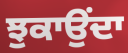
ਝੁਕਾਉਂਦਾ